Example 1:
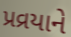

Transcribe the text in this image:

પ્રવ્રયાને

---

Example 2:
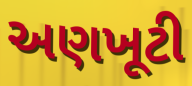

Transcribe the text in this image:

અણખૂટી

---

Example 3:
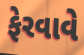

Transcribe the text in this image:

ફેરવાવે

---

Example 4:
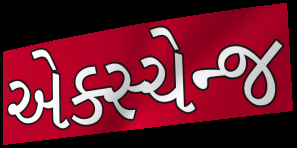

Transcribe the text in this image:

એક્સ્ચેન્જ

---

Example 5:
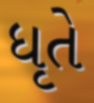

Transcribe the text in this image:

ધૃતે